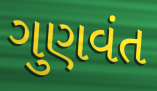
ગુણવંત